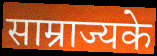
साम्राज्यके